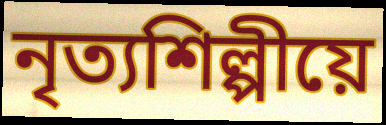
নৃত্যশিল্পীয়ে